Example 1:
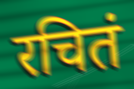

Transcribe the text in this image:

रचितं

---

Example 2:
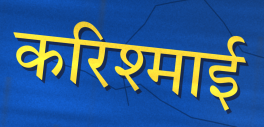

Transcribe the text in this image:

करिश्माई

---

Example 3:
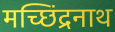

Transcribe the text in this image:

मच्छिंद्रनाथ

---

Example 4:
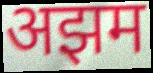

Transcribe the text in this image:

अझम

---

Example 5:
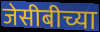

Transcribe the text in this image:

जेसीबीच्या